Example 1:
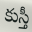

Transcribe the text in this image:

కుస్తీ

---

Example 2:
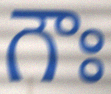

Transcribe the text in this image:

గౌః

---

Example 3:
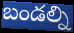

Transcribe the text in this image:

బండల్ని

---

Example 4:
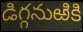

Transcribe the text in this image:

డిగ్గనుఱికి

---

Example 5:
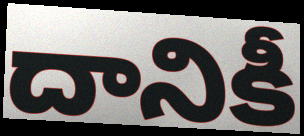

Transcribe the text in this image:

దానికీ